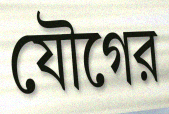
যৌগের